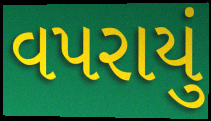
વપરાયું